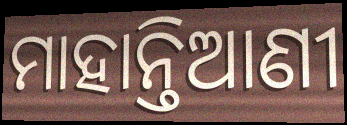
ମାହାନ୍ତିଆଣୀ